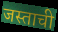
जस्ताची